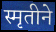
स्मृतीने